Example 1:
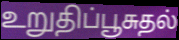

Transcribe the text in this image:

உறுதிப்பூசுதல்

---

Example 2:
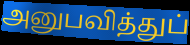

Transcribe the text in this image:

அனுபவித்துப்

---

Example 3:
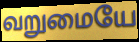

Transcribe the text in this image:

வறுமையே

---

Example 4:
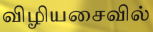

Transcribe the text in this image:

விழியசைவில்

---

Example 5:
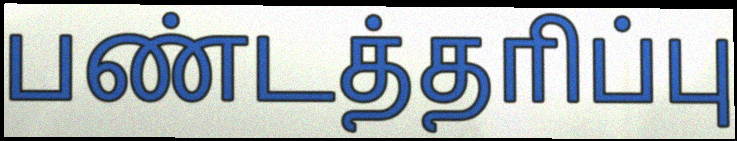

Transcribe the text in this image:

பண்டத்தரிப்பு